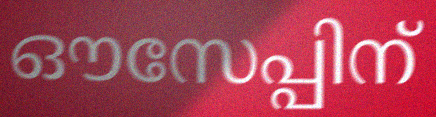
ഔസേപ്പിന്